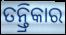
ତନ୍ତ୍ରିକାର